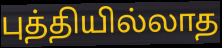
புத்தியில்லாத